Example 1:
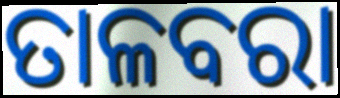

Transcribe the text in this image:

ତାଳବରା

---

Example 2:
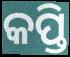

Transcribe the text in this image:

କପ୍ତି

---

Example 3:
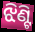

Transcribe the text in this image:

ଝିଣ୍ଟି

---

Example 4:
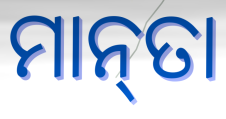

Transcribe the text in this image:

ମାନ୍‌ତା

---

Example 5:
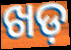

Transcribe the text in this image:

ଖଡ଼